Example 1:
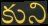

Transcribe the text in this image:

కుని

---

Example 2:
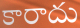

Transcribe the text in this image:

కారాదు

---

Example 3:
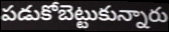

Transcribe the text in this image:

పడుకోబెట్టుకున్నారు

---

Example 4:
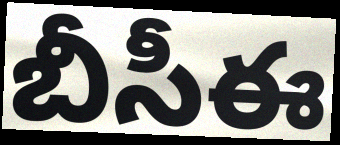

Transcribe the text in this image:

బీసీఈ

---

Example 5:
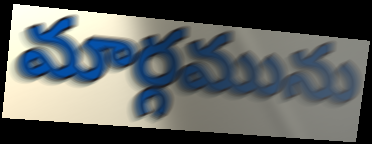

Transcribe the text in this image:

మార్గమును